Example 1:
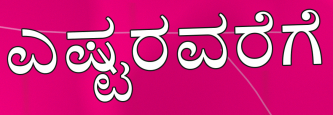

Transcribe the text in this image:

ಎಷ್ಟರವರೆಗೆ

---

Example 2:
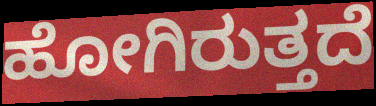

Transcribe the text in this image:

ಹೋಗಿರುತ್ತದೆ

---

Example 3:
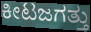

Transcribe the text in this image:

ಕೀಟಜಗತ್ತು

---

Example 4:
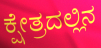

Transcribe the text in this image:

ಕ್ಷೇತ್ರದಲ್ಲಿನ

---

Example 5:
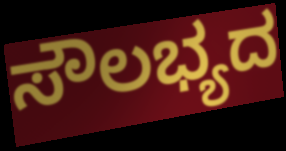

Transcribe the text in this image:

ಸೌಲಭ್ಯದ